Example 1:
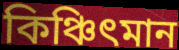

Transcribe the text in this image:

কিঞ্চিৎমান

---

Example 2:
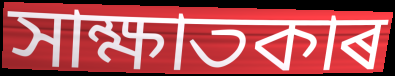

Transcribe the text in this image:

সাক্ষাতকাৰ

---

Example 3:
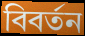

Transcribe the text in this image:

বিবৰ্তন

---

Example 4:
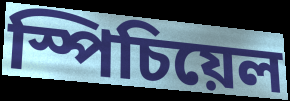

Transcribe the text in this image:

স্পিচিয়েল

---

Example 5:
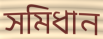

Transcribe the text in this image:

সমিধান